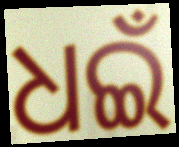
ଧଇଁ